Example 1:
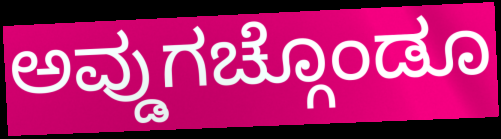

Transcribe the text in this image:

ಅವ್ಡುಗಚ್ಗೊಂಡೂ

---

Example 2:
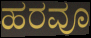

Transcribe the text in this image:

ಹರವೂ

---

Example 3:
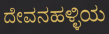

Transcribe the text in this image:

ದೇವನಹಳ್ಳಿಯ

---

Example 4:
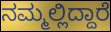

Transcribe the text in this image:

ನಮ್ಮಲ್ಲಿದ್ದಾರೆ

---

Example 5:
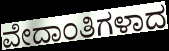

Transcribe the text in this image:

ವೇದಾಂತಿಗಳಾದ